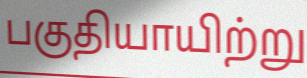
பகுதியாயிற்று